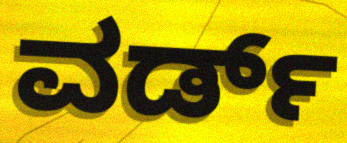
ವರ್ಡ್